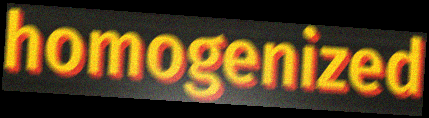
homogenized